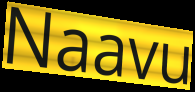
Naavu